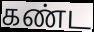
கண்ட